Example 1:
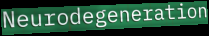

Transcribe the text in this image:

Neurodegeneration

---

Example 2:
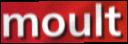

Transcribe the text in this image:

moult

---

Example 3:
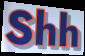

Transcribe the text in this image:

Shh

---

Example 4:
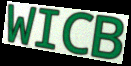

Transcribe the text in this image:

WICB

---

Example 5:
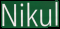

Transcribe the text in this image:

Nikul